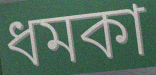
ধমকা